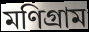
মণিগ্রাম